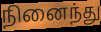
நினைந்து